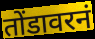
तोंडावरनं